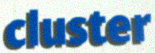
cluster